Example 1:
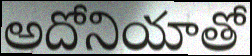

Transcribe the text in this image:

అదోనియాతో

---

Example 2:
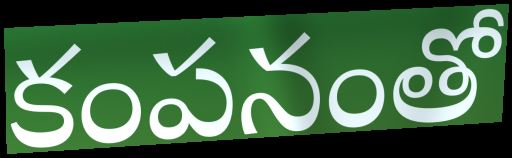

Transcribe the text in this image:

కంపనంతో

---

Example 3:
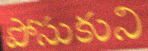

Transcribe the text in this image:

పోసుకుని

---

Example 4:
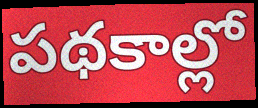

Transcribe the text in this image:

పథకాల్లో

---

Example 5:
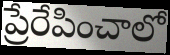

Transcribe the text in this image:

ప్రేరేపించాలో